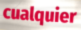
cualquier